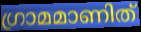
ഗ്രാമമാണിത്